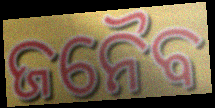
ଜନୈବ